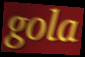
gola